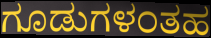
ಗೂಡುಗಳಂತಹ